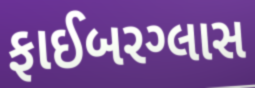
ફાઈબરગ્લાસ